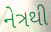
નેત્રથી